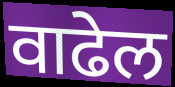
वाढेल